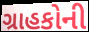
ગ્રાહકોની